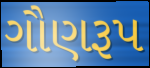
ગૌણરૂપ